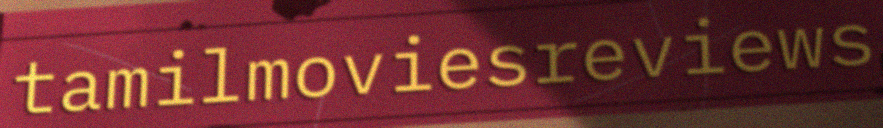
tamilmoviesreviews